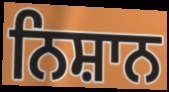
ਨਿਸ਼ਾਨ